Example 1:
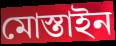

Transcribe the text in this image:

মোস্তাইন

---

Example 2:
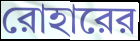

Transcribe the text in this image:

রোহারের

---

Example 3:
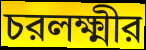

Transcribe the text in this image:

চরলক্ষ্মীর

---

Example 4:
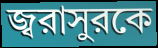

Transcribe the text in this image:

জ্বরাসুরকে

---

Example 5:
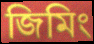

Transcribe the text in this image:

জিমিং